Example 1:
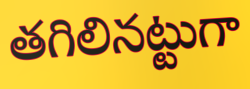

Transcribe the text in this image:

తగిలినట్టుగా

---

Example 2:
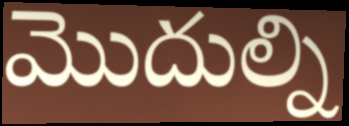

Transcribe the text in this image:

మొదుల్ని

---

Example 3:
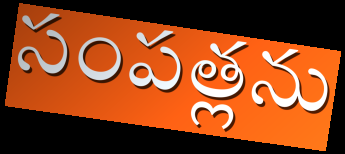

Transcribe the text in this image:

సంపత్లను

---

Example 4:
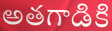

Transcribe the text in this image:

అతగాడికి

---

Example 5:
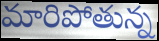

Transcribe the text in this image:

మారిపోతున్న